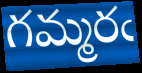
గమ్మరఁ